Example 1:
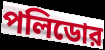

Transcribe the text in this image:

পলিডোর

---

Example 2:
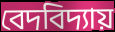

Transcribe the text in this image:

বেদবিদ্যায়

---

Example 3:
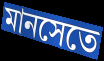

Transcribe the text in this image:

মানসেতে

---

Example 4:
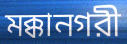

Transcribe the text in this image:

মক্কানগরী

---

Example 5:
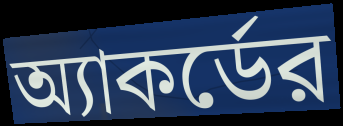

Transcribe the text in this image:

অ্যাকর্ডের